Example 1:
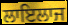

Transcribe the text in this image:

ਲਾਇਲਾਜ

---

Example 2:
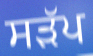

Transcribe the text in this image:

ਸੜੱਪ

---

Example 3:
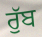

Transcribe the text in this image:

ਰੁੱਬ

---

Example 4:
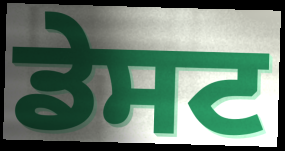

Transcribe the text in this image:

ਡੇਸਟ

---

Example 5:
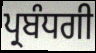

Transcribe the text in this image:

ਪ੍ਰਬੰਧਗੀ